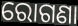
ରୋଗଣା